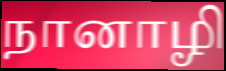
நானாழி